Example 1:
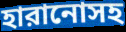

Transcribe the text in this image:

হারানোসহ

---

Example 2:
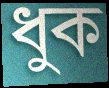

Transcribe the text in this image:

ধুক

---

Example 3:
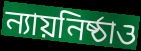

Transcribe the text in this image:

ন্যায়নিষ্ঠাও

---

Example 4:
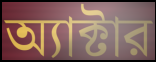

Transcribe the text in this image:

অ্যাক্টার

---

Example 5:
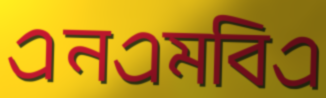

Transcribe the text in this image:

এনএমবিএ